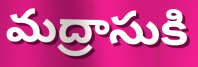
మద్రాసుకి